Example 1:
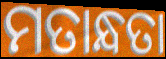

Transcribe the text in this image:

ମତାନ୍ଧତା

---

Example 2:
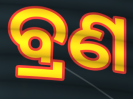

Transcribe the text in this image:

ବ୍ରଣ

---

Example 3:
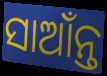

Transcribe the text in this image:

ସାଆଁନ୍ତ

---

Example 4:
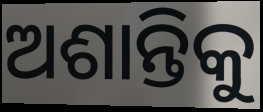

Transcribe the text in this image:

ଅଶାନ୍ତିକୁ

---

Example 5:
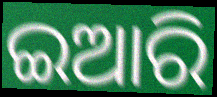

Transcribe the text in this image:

ଇଆରି